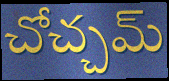
చోచ్చమ్